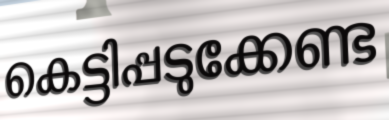
കെട്ടിപ്പടുക്കേണ്ട